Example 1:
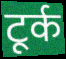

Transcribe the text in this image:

टूर्क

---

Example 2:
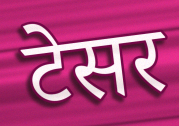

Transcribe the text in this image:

टेसर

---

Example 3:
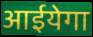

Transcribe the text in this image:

आईयेगा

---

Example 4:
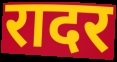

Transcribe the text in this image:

रादर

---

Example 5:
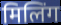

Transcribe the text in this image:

मिलिंग